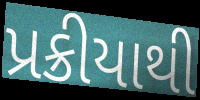
પ્રક્રીયાથી